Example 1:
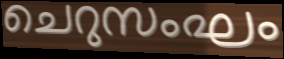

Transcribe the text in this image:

ചെറുസംഘം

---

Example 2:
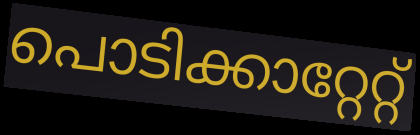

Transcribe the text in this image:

പൊടിക്കാറ്റേറ്റ്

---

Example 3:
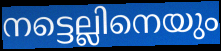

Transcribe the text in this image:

നട്ടെല്ലിനെയും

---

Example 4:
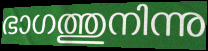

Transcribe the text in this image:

ഭാഗത്തുനിന്നു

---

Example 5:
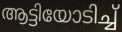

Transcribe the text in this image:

ആട്ടിയോടിച്ച്